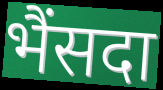
भैंसदा